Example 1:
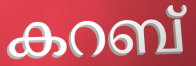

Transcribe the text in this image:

കറബ്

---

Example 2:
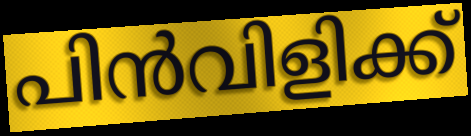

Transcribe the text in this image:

പിൻവിളിക്ക്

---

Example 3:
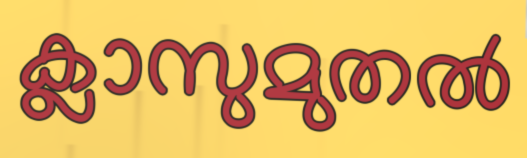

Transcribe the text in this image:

ക്ലാസുമുതൽ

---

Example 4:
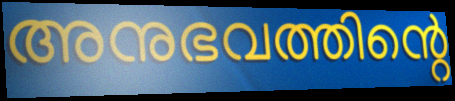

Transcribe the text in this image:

അനുഭവത്തിന്റെ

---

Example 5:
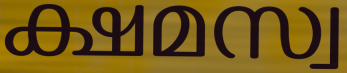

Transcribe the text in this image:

ക്ഷമസ്വ